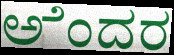
ಅೆಂದರ